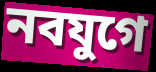
নবযুগে